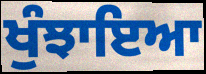
ਖੁੰਝਾਇਆ